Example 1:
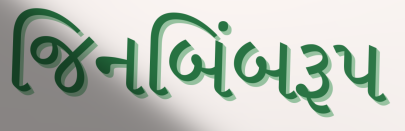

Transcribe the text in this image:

જિનબિંબરૂપ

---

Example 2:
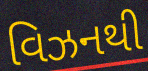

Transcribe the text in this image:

વિઝનથી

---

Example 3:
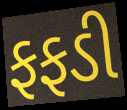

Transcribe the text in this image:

ફફડી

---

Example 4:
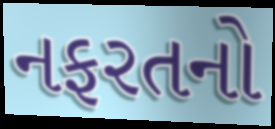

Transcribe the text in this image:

નફરતનો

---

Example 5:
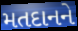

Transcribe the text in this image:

મતદાનને